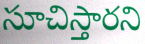
సూచిస్తారని